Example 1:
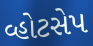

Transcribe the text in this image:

વ્હોટસેપ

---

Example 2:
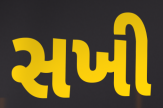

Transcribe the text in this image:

સખી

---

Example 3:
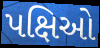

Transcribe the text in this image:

પક્ષિઓ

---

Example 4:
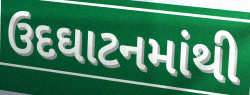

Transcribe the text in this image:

ઉદઘાટનમાંથી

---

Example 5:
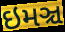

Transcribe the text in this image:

ઇમઞ્ચ